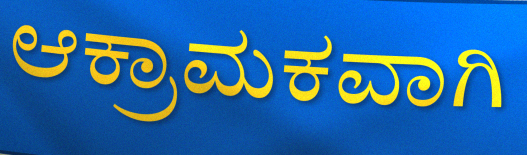
ಆಕ್ರಾಮಕವಾಗಿ